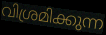
വിശ്രമിക്കുന്ന